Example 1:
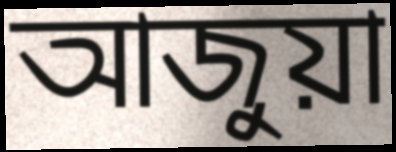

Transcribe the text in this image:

আজুয়া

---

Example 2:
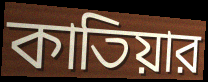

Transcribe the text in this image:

কাতিয়ার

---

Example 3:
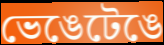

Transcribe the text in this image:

ভেঙেটেঙে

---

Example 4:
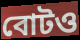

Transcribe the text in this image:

বোটও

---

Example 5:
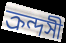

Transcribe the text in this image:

ক্রন্দসী